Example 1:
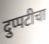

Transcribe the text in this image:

दुप्पटीचा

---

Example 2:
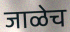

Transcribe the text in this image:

जाळेच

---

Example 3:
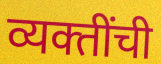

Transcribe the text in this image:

व्‍यक्‍तींची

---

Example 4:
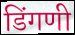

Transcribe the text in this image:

डिंगणी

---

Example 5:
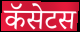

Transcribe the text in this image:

कॅसेटस